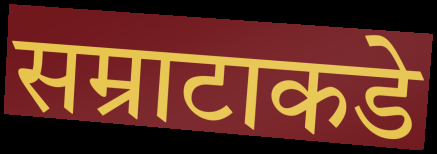
सम्राटाकडे